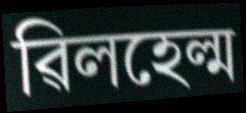
ৱিলহেল্ম